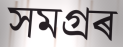
সমগ্ৰৰ